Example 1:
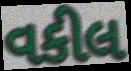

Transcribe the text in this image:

વકીલ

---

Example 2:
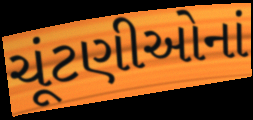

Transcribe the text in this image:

ચૂંટણીઓનાં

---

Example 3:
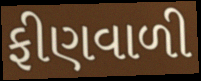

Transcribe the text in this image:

ફીણવાળી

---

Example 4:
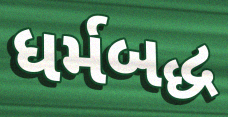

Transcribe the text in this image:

ધર્મબદ્ધ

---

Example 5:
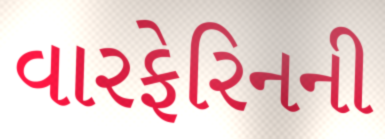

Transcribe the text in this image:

વારફેરિનની